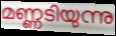
മണ്ണടിയുന്നു